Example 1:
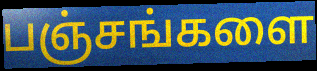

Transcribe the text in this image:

பஞ்சங்களை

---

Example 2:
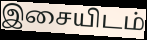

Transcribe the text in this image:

இசையிடம்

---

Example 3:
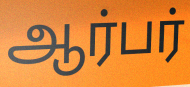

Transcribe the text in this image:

ஆர்பர்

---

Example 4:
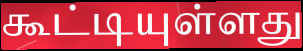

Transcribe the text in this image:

கூட்டியுள்ளது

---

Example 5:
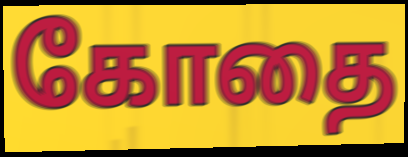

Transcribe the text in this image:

கோதை